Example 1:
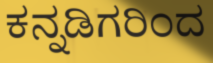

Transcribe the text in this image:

ಕನ್ನಡಿಗರಿಂದ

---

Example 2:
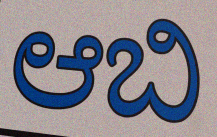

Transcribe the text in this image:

ಆಬಿ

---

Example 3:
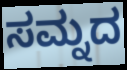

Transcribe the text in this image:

ಸಮ್ನದ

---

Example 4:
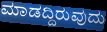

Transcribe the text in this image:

ಮಾಡದ್ದಿರುವುದು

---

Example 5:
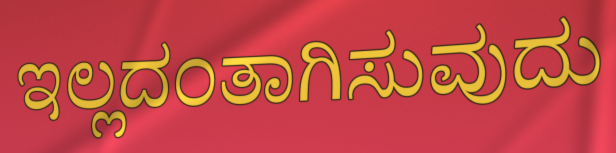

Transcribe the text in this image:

ಇಲ್ಲದಂತಾಗಿಸುವುದು